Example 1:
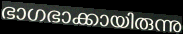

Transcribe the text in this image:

ഭാഗഭാക്കായിരുന്നു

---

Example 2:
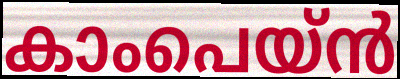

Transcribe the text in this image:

കാംപെയ്ൻ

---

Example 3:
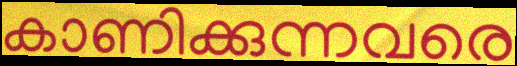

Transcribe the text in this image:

കാണിക്കുന്നവരെ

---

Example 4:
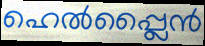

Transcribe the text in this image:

ഹെൽപ്പ്ലൈൻ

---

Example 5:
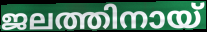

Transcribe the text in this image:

ജലത്തിനായ്